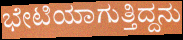
ಭೇಟಿಯಾಗುತ್ತಿದ್ದನು